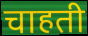
चाहती